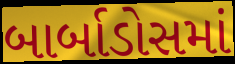
બાર્બાડોસમાં